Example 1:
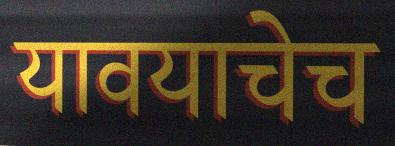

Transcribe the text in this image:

यावयाचेच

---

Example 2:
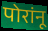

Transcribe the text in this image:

पोरांनू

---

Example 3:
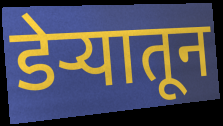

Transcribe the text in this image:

डेऱ्यातून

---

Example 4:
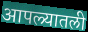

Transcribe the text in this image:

आपल्यातली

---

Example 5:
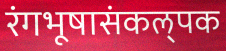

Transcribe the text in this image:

रंगभूषासंकल्पक